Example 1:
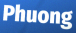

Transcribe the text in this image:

Phuong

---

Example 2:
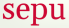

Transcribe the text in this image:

sepu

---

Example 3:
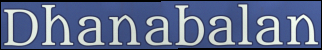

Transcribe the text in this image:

Dhanabalan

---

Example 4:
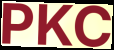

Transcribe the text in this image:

PKC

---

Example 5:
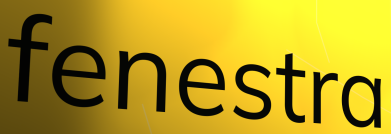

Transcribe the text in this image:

fenestra